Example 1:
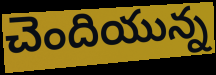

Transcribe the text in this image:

చెందియున్న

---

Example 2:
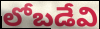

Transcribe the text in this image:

లోబడేవి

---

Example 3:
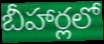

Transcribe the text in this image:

బీహార్లలో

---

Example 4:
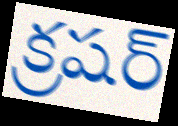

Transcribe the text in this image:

క్రషర్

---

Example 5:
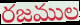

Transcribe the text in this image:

రజముల